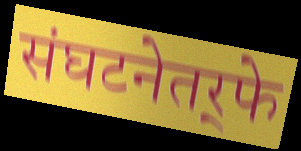
संघटनेतर्फे